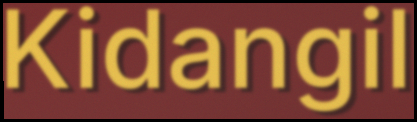
Kidangil